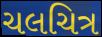
ચલચિત્ર